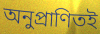
অনুপ্রাণিতই